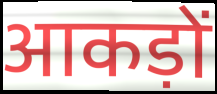
आकड़ों